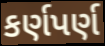
કર્ણપર્ણ